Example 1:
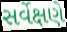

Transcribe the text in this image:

સર્વેક્ષણે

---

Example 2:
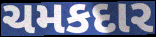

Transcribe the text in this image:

ચમકદાર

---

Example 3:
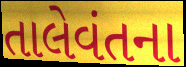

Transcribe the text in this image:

તાલેવંતના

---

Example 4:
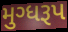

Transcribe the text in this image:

મુગ્ધરૂપ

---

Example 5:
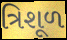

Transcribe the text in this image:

ત્રિશૂળ